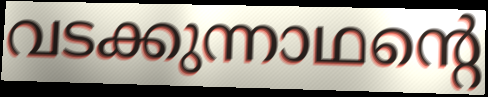
വടക്കുന്നാഥന്റെ